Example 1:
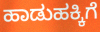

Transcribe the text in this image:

ಹಾಡುಹಕ್ಕಿಗೆ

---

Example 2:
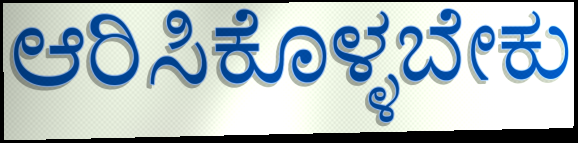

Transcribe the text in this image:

ಆರಿಸಿಕೊಳ್ಳಬೇಕು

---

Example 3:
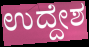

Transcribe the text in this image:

ಉದ್ದೇಶ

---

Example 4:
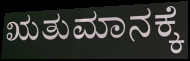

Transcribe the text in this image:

ಋತುಮಾನಕ್ಕೆ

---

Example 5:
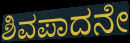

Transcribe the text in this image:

ಶಿವಪಾದನೇ